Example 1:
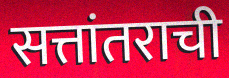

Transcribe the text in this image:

सत्तांतराची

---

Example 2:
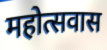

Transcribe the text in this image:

महोत्सवास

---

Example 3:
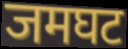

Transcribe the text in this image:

जमघट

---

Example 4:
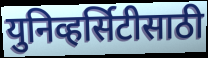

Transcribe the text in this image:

युनिव्हर्सिटीसाठी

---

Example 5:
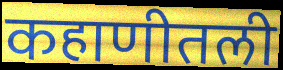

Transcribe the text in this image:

कहाणीतली